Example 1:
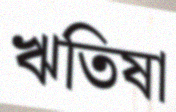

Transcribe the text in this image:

ঋতিষা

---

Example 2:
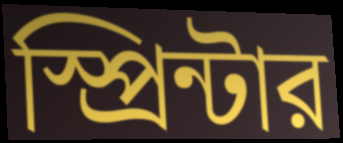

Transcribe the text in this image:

স্প্রিন্টার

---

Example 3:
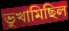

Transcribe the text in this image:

ভুখামিছিল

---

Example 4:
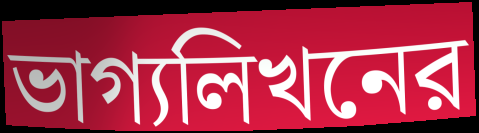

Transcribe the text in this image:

ভাগ্যলিখনের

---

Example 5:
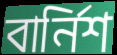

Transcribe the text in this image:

বার্নিশ